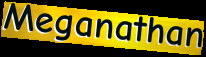
Meganathan